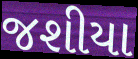
જશીયા